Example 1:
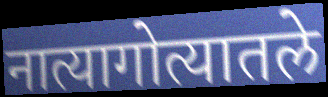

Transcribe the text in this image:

नात्यागोत्यातले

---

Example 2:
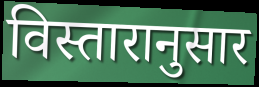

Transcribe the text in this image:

विस्तारानुसार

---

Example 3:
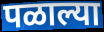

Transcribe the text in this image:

पळाल्या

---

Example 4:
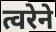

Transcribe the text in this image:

त्वरेने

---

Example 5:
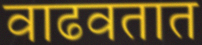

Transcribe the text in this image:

वाढवतात